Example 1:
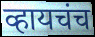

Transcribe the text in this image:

व्हायचंच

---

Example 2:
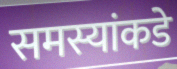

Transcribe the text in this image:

समस्यांकडे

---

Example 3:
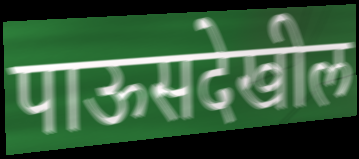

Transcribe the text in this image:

पाऊसदेखील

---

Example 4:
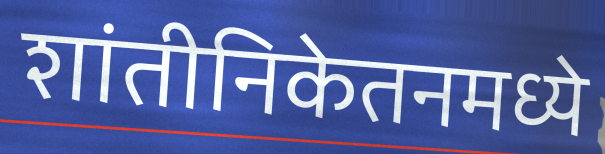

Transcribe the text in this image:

शांतीनिकेतनमध्ये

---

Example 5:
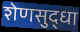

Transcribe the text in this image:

शेणसुद्धा